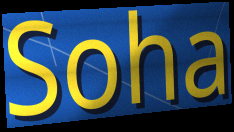
Soha